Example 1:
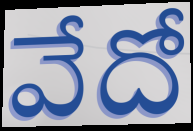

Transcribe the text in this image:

వేదో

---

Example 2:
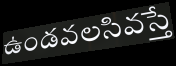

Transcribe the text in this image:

ఉండవలసివస్తే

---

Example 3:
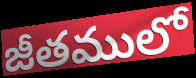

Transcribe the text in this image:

జీతములో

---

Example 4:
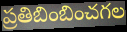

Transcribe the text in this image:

ప్రతిబింబించగల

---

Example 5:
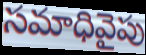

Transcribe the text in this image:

సమాధివైపు